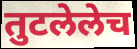
तुटलेलेच